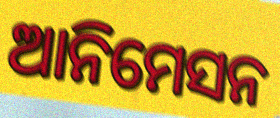
ଆନିମେସନ